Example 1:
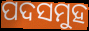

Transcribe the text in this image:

ପଦସମୁହ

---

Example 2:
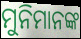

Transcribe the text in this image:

ମୁନିମାନଙ୍କ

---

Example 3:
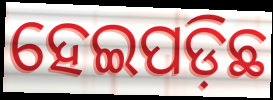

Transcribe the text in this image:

ହେଇପଡ଼ିଛ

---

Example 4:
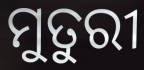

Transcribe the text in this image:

ମୁତୁରୀ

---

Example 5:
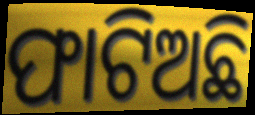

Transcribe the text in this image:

ଫାଟିଅଛି